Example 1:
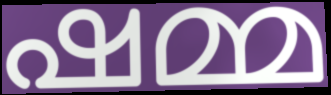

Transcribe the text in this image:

ഷമ്മ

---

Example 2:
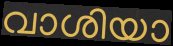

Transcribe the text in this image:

വാശിയാ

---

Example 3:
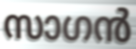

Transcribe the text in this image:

സാഗൻ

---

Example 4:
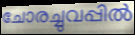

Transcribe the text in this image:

ചോരച്ചുവപ്പിൽ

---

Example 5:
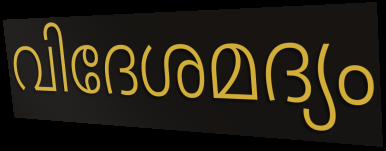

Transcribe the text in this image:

വിദേശമദ്യം